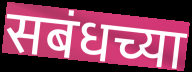
सबंधच्या